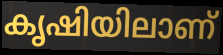
കൃഷിയിലാണ്